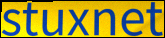
stuxnet